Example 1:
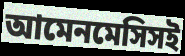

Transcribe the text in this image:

আমেনমেসিসই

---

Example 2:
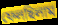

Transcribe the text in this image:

ফেলছিলাম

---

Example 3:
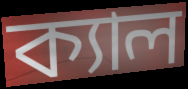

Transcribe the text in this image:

ক্যাল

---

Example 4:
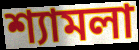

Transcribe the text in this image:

শ্যামলা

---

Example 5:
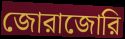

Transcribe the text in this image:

জোরাজোরি